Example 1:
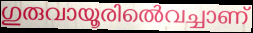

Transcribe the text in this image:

ഗുരുവായൂരിൽെവച്ചാണ്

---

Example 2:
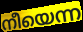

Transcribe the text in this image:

നീയെന്ന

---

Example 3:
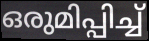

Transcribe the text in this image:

ഒരുമിപ്പിച്ച്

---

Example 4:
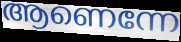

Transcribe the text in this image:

ആണെന്നേ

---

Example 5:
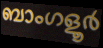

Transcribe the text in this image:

ബാംഗളൂർ